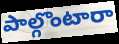
పాల్గొంటారా